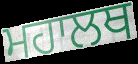
ਮਹਾਲਥ